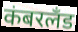
कंबरलँड